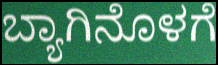
ಬ್ಯಾಗಿನೊಳಗೆ